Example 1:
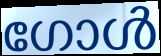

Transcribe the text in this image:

ഗോൾ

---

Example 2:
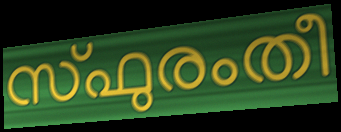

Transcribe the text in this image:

സ്ഫുരംതീ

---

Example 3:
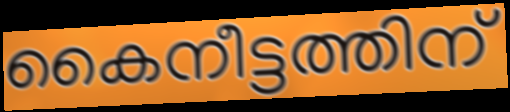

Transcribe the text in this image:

കൈനീട്ടത്തിന്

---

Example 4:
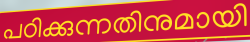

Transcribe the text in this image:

പഠിക്കുന്നതിനുമായി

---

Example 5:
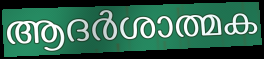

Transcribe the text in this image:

ആദർശാത്മക